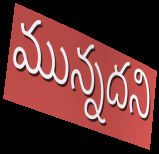
మున్నదని